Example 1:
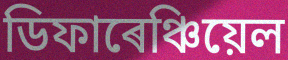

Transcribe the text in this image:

ডিফাৰেঞ্চিয়েল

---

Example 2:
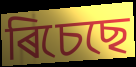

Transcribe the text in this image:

ৰিচেছে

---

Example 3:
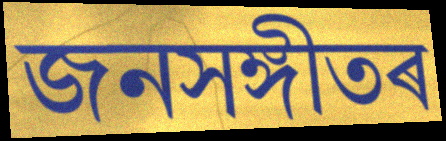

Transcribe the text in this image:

জনসঙ্গীতৰ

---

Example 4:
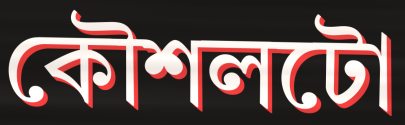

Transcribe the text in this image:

কৌশলটো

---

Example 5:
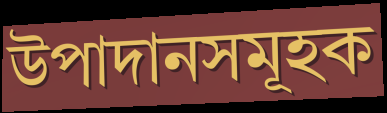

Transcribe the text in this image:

উপাদানসমূহক